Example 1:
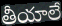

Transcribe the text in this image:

తీయాలే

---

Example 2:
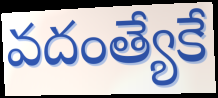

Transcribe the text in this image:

వదంత్యేకే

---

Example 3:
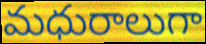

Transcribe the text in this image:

మధురాలుగా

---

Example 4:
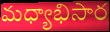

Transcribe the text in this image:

మధ్యాభిసార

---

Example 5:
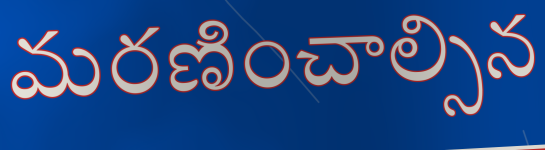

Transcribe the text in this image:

మరణించాల్సిన